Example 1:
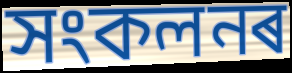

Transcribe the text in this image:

সংকলনৰ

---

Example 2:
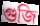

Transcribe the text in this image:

গুজি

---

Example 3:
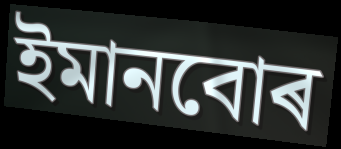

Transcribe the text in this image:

ইমানবোৰ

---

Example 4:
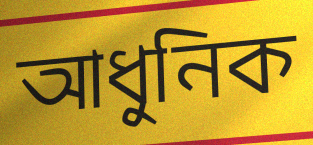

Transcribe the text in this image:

আধুনিক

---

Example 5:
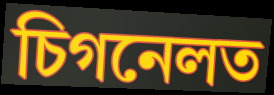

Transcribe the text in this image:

চিগনেলত